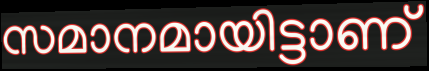
സമാനമായിട്ടാണ്